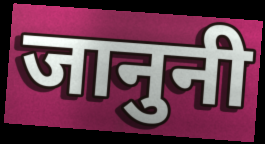
जानुनी